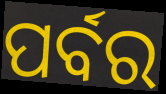
ପର୍ବର